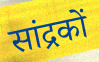
सांद्रकों